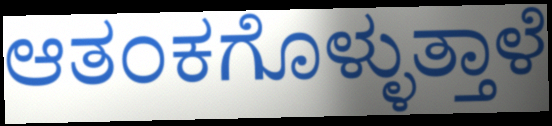
ಆತಂಕಗೊಳ್ಳುತ್ತಾಳೆ